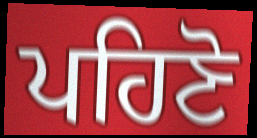
ਪਹਿਣੋ